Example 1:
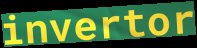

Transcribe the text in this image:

invertor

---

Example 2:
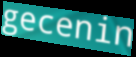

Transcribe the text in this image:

gecenin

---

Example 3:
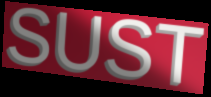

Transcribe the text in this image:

SUST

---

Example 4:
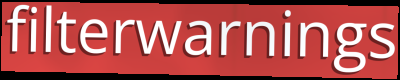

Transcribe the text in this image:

filterwarnings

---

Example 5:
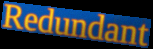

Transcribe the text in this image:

Redundant